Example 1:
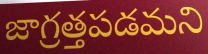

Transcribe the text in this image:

జాగ్రత్తపడమని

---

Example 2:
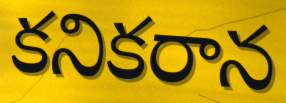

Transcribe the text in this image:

కనికరాన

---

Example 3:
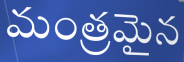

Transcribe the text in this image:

మంత్రమైన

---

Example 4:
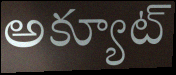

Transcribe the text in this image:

అక్యూట్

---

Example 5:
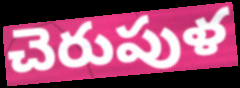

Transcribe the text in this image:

చెరుపుళ